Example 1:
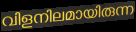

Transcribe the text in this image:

വിളനിലമായിരുന്ന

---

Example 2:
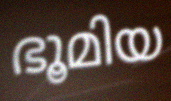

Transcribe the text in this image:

ഭൂമിയ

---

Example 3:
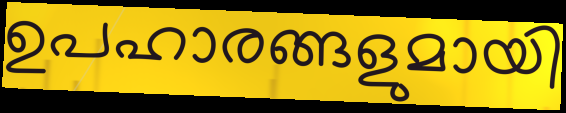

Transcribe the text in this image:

ഉപഹാരങ്ങളുമായി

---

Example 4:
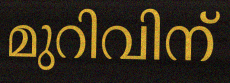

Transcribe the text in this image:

മുറിവിന്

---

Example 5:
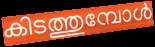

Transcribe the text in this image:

കിടത്തുമ്പോൾ